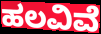
ಹಲವಿವೆ